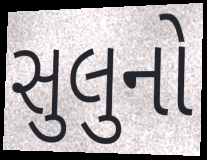
સુલુનો